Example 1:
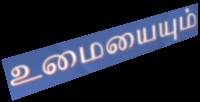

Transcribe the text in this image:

உமையையும்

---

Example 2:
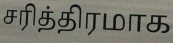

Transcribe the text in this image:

சரித்திரமாக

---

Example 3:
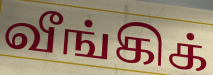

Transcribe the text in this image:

வீங்கிக்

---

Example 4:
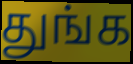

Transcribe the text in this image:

துங்க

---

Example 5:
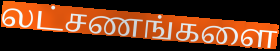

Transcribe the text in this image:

லட்சணங்களை